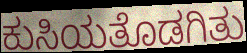
ಕುಸಿಯತೊಡಗಿತು